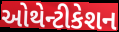
ઓથેન્ટીકેશન